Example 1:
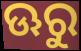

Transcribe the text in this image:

ଊରୁ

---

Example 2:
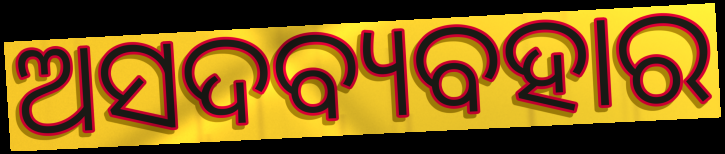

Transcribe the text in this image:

ଅସଦବ୍ୟବହାର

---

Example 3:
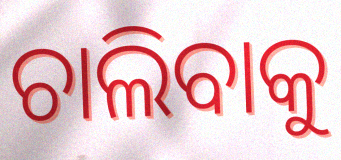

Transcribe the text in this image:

ଚାଲିବାକୁ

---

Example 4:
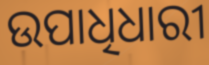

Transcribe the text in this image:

ଉପାଧିଧାରୀ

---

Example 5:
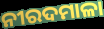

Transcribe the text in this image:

ନୀରଦମାଳା